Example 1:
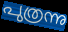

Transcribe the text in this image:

പുത്രന്നു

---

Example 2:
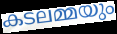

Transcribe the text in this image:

കടലമ്മയും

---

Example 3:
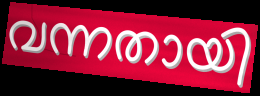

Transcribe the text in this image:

വന്നതായി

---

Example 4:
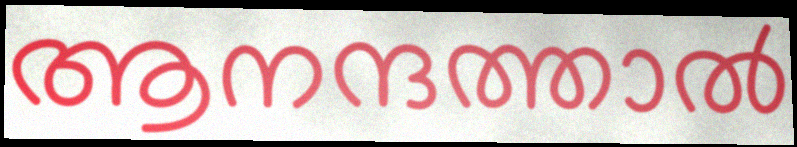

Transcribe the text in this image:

ആനന്ദത്താൽ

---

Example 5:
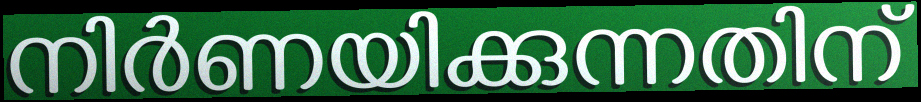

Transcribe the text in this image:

നിർണയിക്കുന്നതിന്